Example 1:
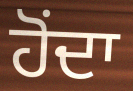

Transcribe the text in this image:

ਹੋਂਦਾ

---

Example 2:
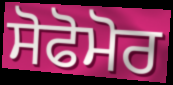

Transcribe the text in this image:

ਸੋਫੋਮੋਰ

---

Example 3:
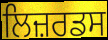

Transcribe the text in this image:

ਲਿਜ਼ਰਡਸ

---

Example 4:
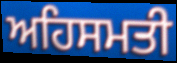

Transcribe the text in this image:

ਅਹਿਸਮਤੀ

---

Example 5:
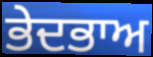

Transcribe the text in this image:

ਭੇਦਭਾਅ